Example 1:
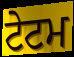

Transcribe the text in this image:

ਟੇਟਮ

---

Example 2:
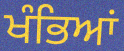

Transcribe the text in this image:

ਖੰਭਿਆਂ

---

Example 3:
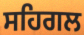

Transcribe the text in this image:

ਸਹਿਗਲ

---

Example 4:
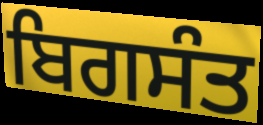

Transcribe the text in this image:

ਬਿਗਸੰਤ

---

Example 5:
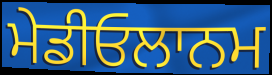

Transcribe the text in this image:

ਮੇਡੀਓਲਾਨਮ